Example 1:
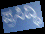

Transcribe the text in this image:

ಪ್ರಸಿದ್ಧಿ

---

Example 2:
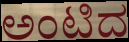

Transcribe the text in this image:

ಅಂಟಿದ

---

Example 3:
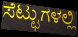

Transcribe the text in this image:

ಸೆಟ್ಟುಗಳಲ್ಲಿ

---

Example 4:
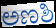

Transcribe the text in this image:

ಅಣಶಿ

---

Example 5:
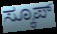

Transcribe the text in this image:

ಸ್ಕೂಪ್